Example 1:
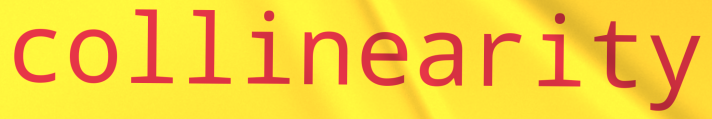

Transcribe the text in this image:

collinearity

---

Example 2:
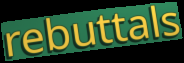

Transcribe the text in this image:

rebuttals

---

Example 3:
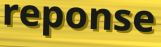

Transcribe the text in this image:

reponse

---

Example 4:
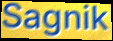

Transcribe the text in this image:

Sagnik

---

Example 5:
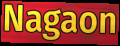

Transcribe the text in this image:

Nagaon